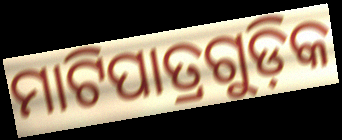
ମାଟିପାତ୍ରଗୁଡ଼ିକ